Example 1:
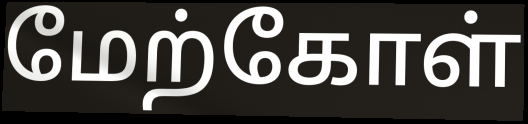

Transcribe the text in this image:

மேற்கோள்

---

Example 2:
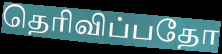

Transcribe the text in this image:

தெரிவிப்பதோ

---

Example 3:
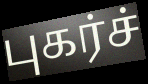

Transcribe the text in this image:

புகர்ச்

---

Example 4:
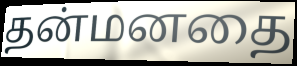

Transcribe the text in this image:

தன்மனதை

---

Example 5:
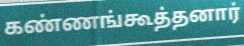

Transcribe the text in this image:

கண்ணங்கூத்தனார்